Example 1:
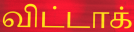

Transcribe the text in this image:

விட்டாக்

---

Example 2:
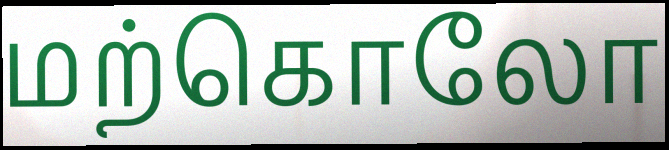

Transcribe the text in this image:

மற்கொலோ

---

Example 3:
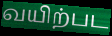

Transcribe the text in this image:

வயிற்பட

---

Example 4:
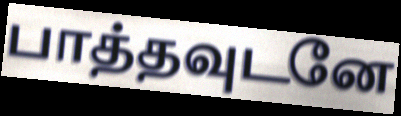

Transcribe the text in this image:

பாத்தவுடனே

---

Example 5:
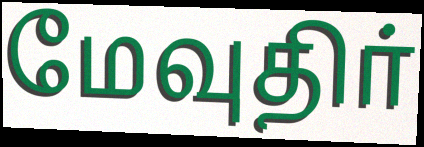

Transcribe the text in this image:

மேவுதிர்